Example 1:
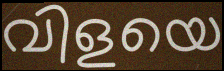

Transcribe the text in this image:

വിളയെ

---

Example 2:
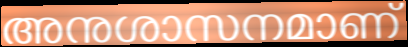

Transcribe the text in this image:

അനുശാസനമാണ്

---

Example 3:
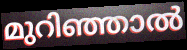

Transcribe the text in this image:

മുറിഞ്ഞാൽ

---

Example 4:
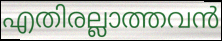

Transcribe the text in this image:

എതിരല്ലാത്തവൻ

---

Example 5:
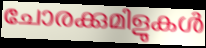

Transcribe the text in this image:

ചോരക്കുമിളുകൾ